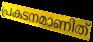
പ്രകടനമാണിത്